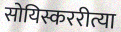
सोयिस्कररीत्या